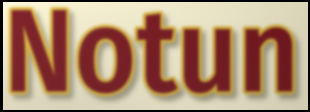
Notun